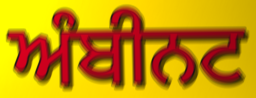
ਅੰਬੀਨਟ